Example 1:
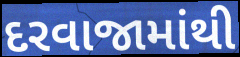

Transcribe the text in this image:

દરવાજામાંથી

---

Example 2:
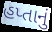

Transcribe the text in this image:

હપ્તાનું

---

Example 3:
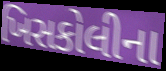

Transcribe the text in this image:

ખિસકોલીના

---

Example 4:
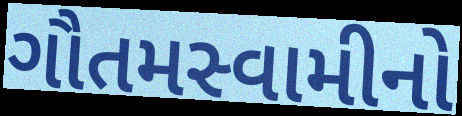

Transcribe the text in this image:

ગૌતમસ્વામીનો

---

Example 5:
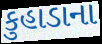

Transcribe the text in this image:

કુહાડાના